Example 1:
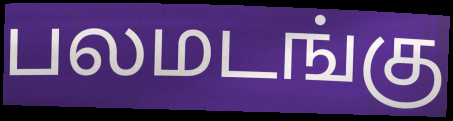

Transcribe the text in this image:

பலமடங்கு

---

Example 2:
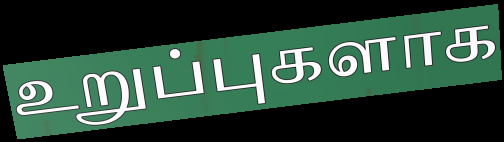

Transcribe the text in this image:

உறுப்புகளாக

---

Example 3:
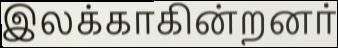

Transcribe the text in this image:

இலக்காகின்றனர்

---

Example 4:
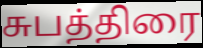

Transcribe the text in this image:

சுபத்திரை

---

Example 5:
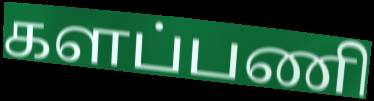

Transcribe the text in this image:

களப்பணி